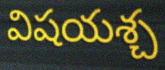
విషయశ్చ